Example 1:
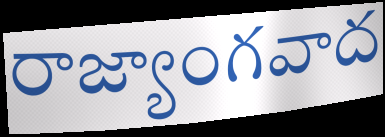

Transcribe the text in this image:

రాజ్యాంగవాద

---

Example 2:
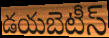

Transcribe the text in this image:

డయబెటీస్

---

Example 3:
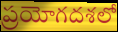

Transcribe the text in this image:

ప్రయోగదశలో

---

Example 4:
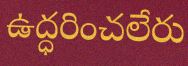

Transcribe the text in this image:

ఉద్ధరించలేరు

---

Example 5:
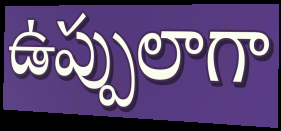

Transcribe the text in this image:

ఉప్పులాగా